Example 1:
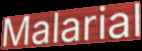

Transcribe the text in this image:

Malarial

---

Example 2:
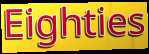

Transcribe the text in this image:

Eighties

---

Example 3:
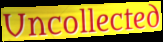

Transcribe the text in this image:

Uncollected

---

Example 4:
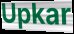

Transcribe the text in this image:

Upkar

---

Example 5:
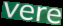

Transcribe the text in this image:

vere